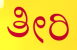
ತೀರಿ